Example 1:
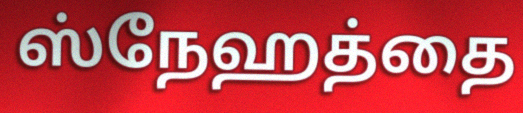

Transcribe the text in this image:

ஸ்நேஹத்தை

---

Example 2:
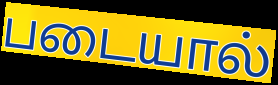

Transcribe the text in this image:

படையால்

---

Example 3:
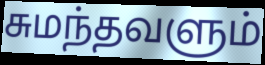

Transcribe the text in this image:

சுமந்தவளும்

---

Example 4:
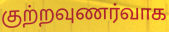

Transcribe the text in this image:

குற்றவுணர்வாக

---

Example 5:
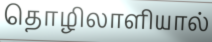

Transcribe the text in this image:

தொழிலாளியால்